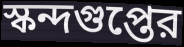
স্কন্দগুপ্তের